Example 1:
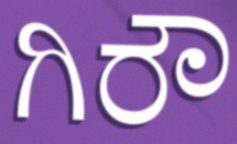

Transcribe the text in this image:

ಗಿರೌ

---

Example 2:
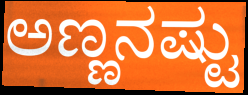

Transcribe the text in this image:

ಅಣ್ಣನಷ್ಟು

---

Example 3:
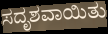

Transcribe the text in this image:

ಸದೃಶವಾಯಿತು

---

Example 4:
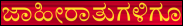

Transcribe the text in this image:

ಜಾಹೀರಾತುಗಳಿಗೂ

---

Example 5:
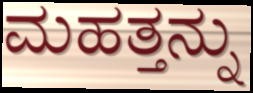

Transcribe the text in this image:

ಮಹತ್ತನ್ನು